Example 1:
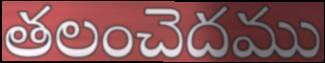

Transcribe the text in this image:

తలంచెదము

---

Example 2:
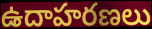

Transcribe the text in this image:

ఉదాహరణలు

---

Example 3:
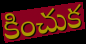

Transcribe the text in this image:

కించుక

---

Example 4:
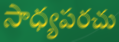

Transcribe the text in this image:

సాధ్యపరచు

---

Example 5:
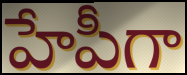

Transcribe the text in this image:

హేపీగా